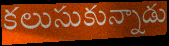
కలుసుకున్నాడు